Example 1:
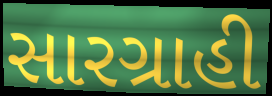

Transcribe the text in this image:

સારગ્રાહી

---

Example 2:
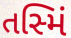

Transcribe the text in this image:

તસ્મિં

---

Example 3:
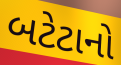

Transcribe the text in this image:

બટેટાનો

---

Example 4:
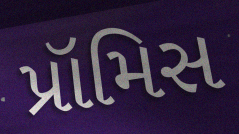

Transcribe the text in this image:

પ્રૉમિસ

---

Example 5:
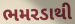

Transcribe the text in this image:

ભમરડાથી